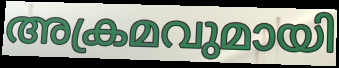
അക്രമവുമായി